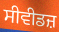
ਸੀਵੀਡਜ਼